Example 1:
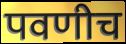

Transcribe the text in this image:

पवणीच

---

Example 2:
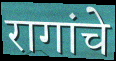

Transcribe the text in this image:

रागांचे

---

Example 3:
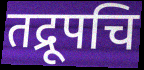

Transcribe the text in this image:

तद्रूपचि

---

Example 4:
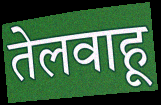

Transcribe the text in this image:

तेलवाहू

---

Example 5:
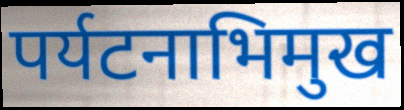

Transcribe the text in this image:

पर्यटनाभिमुख